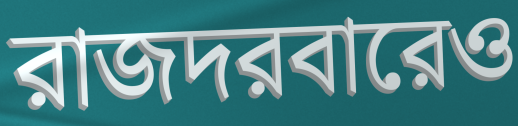
রাজদরবারেও